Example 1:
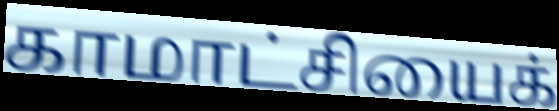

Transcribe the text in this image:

காமாட்சியைக்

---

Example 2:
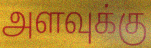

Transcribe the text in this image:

அளவுக்கு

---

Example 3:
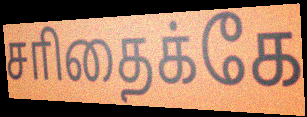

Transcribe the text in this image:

சரிதைக்கே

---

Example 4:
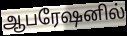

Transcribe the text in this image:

ஆபரேஷனில்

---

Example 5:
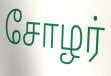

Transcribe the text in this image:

சோழர்